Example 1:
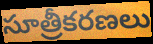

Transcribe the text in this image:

సూత్రీకరణలు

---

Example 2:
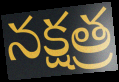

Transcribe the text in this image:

నక్షత్ర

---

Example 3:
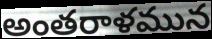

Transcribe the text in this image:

అంతరాళమున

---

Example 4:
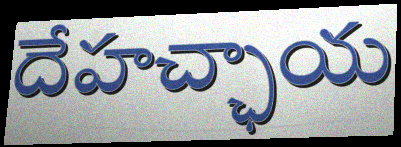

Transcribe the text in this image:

దేహచ్ఛాయ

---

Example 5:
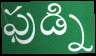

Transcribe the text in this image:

ఫుడ్ని